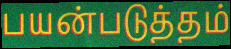
பயன்படுத்தம்